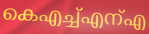
കെഎച്ച്എന്എ